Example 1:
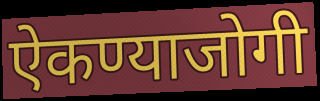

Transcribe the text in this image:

ऐकण्याजोगी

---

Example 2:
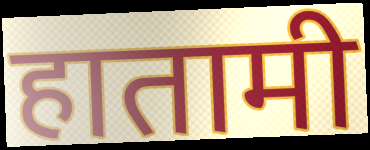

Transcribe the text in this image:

हातामी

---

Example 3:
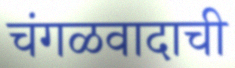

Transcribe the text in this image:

चंगळवादाची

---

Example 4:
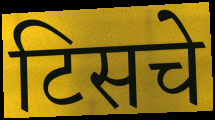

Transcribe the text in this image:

टिसचे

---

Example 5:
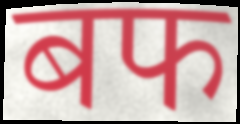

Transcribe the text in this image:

बफ